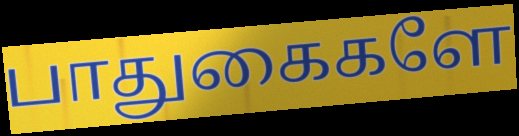
பாதுகைகளே